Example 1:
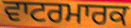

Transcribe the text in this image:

ਵਾਟਰਮਾਰਕ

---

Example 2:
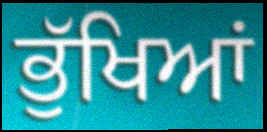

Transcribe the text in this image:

ਭੁੱਖਿਆਂ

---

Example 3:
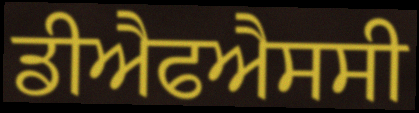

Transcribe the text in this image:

ਡੀਐਫਐਸਸੀ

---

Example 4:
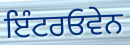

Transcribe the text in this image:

ਇੰਟਰਓਵੇਨ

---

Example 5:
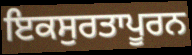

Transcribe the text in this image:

ਇਕਸੁਰਤਾਪੂਰਨ